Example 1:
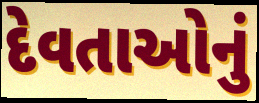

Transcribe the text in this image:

દેવતાઓનું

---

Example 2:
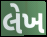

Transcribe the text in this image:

લેખ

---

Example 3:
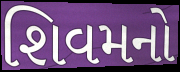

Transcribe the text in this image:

શિવમનો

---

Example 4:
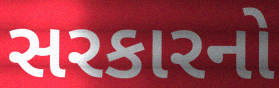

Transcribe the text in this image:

સરકારનો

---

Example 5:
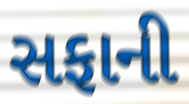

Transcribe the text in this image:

સફાની